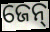
ଜେନ୍